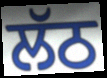
ਲੱਠ